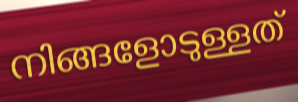
നിങ്ങളോടുള്ളത്